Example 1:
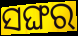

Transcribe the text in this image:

ସଙ୍ଘର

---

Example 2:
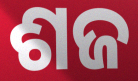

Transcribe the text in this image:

ଶଜ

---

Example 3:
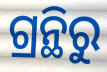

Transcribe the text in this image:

ଗ୍ରନ୍ଥିରୁ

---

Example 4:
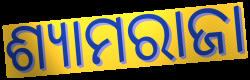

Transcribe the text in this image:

ଶ୍ୟାମରାଜା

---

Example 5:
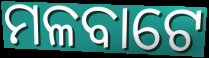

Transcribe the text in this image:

ମଳବାଟେ